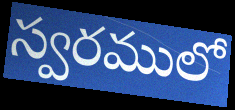
స్వరములో